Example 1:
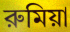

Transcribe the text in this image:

রুমিয়া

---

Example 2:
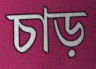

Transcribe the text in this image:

চাড়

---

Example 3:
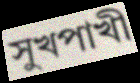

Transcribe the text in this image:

সুখপাখী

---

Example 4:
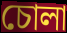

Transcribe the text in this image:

চোলা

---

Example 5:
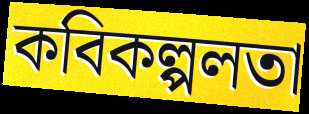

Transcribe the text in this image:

কবিকল্পলতা